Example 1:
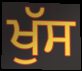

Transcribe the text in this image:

ਖੁੱਸ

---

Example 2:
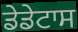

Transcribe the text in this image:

ਡੇਡੇਟਾਸ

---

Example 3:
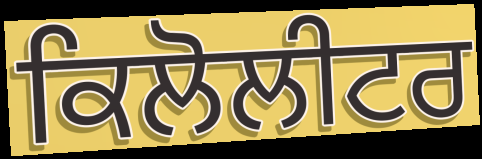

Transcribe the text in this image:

ਕਿਲੋਲੀਟਰ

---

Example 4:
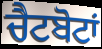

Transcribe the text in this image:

ਚੈਟਬੋਟਾਂ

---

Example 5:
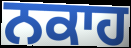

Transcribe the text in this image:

ਨਕਾਹ